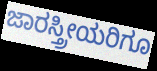
ಜಾರಸ್ತ್ರೀಯರಿಗೂ